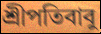
শ্রীপতিবাবু